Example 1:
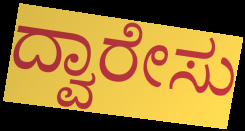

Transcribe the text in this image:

ದ್ವಾರೇಸು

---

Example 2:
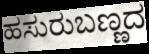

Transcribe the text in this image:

ಹಸುರುಬಣ್ಣದ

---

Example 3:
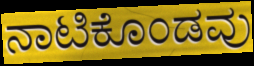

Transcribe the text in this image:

ನಾಟಿಕೊಂಡವು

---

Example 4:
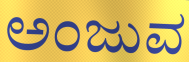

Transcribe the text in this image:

ಅಂಜುವ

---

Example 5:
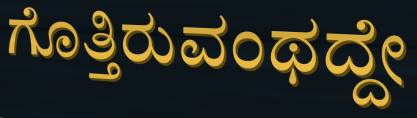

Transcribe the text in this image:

ಗೊತ್ತಿರುವಂಥದ್ದೇ